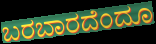
ಬರಬಾರದೆಂದೂ